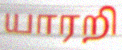
யாரறி